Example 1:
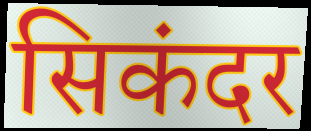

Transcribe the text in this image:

सिकंदर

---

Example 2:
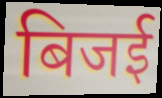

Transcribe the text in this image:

बिजई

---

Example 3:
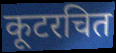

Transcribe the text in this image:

कूटरचित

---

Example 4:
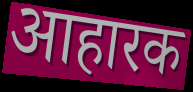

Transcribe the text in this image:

आहारक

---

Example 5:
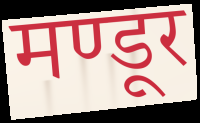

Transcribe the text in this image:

मण्डूर